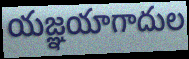
యజ్ఞయాగాదుల